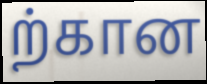
ற்கான